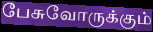
பேசுவோருக்கும்